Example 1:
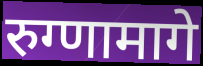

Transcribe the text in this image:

रुग्णामागे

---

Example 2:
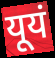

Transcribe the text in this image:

यूयं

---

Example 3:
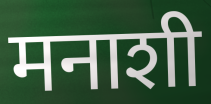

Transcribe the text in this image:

मनाशी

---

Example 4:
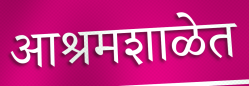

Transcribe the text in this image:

आश्रमशाळेत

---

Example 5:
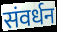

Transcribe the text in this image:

संवर्धन